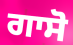
ਗਾਸੋ